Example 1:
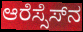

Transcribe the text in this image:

ಆರೆಸ್ಸೆಸ್‌ನ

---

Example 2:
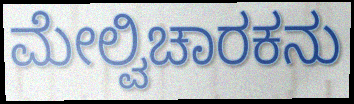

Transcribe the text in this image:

ಮೇಲ್ವಿಚಾರಕನು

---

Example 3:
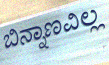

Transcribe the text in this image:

ಬಿನ್ನಾಣವಿಲ್ಲ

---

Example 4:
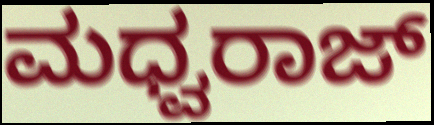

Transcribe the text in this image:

ಮಧ್ವರಾಜ್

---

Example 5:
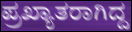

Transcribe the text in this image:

ಪ್ರಖ್ಯಾತರಾಗಿದ್ದ